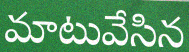
మాటువేసిన